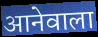
आनेवाला